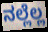
ನಲ್ಲೆಲ್ಲ